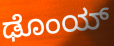
ಢೊಂಯ್